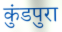
कुंडपुरा